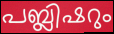
പബ്ലിഷറും